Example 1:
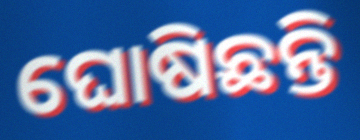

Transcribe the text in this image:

ଘୋଷିଛନ୍ତି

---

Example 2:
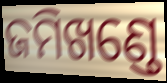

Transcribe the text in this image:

ଜମିଖଣ୍ଡେ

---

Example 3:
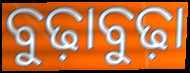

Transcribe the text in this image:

ବୁଢ଼ାବୁଢ଼ା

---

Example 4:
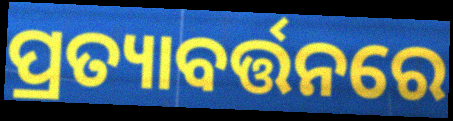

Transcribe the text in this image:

ପ୍ରତ୍ୟାବର୍ତ୍ତନରେ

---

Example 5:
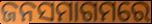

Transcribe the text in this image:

ଜନସମାଗମରେ